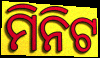
ମିନିଟ